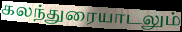
கலந்துரையாடலும்